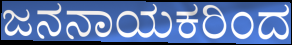
ಜನನಾಯಕರಿಂದ